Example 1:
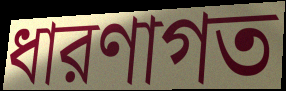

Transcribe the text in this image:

ধারণাগত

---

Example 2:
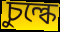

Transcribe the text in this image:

চুল্কে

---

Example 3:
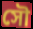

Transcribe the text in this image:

সৌ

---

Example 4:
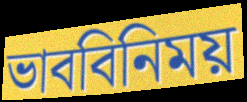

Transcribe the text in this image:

ভাববিনিময়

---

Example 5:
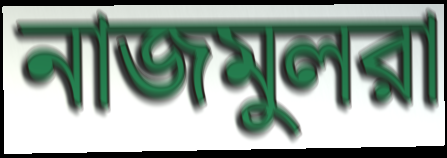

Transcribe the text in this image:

নাজমুলরা